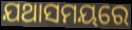
ଯଥାସମୟରେ